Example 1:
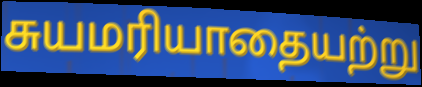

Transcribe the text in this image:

சுயமரியாதையற்று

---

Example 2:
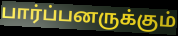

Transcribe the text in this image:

பார்ப்பனருக்கும்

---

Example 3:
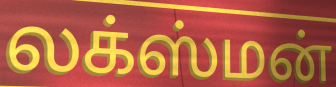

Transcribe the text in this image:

லக்ஸ்மன்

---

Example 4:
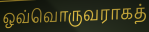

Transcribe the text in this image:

ஒவ்வொருவராகத்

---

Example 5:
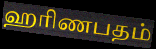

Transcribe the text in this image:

ஹரிணபதம்